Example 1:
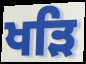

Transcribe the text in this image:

ਖੜਿ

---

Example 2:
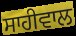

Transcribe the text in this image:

ਸਾਹੀਵਾਲ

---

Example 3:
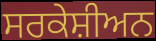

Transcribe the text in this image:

ਸਰਕੇਸ਼ੀਅਨ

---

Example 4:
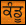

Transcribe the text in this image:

ਕੰਡੂ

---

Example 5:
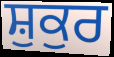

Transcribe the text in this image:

ਸ਼ੁਕੁਰ